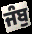
ਜੰਬੁ